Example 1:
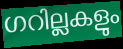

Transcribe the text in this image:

ഗറില്ലകളും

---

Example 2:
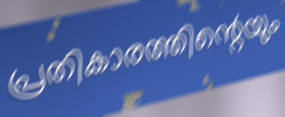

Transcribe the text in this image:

പ്രതികാരത്തിന്റെയും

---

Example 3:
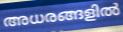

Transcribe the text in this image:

അധരങ്ങളിൽ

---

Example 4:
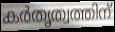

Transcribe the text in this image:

കർതൃത്വത്തിന്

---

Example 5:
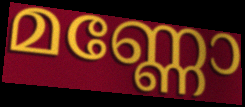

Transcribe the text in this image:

മണ്ണോ